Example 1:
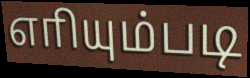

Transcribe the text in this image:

எரியும்படி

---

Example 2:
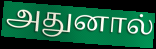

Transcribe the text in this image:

அதுனால்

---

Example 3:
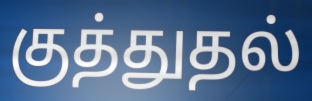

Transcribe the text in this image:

குத்துதல்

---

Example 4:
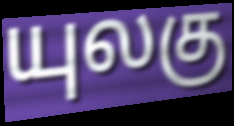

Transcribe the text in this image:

யுலகு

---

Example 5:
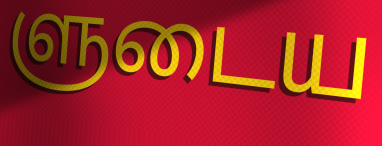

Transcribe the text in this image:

ளுடைய